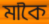
মাকৈ